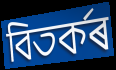
বিতৰ্কৰ